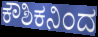
ಕೌಶಿಕನಿಂದ